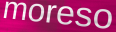
moreso